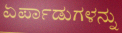
ಏರ್ಪಾಡುಗಳನ್ನು